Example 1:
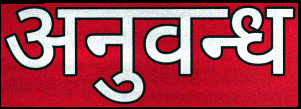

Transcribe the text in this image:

अनुवन्ध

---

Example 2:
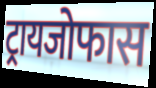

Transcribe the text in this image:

ट्रायजोफास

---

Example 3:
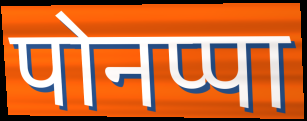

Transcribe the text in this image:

पोनप्‍पा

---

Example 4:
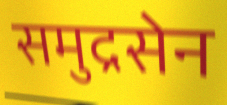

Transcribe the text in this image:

समुद्रसेन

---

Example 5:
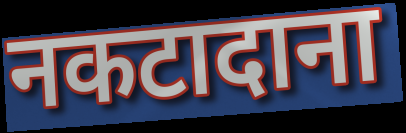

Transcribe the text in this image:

नकटादाना